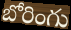
బోరింగు